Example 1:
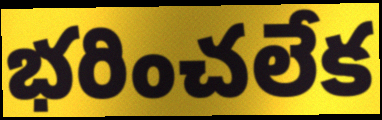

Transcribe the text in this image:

భరించలేక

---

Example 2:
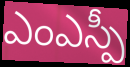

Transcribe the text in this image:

ఎంఎస్పీ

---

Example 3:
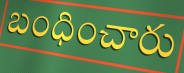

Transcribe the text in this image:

బంధించారు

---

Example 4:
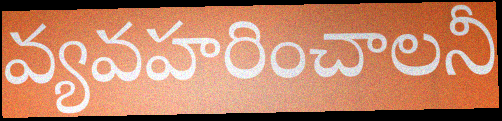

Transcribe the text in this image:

వ్యవహరించాలనీ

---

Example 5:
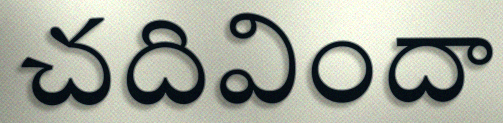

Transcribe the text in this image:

చదివిందా